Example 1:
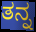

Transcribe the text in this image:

ತನ್ನ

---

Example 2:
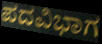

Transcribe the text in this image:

ಪದವಿಭಾಗ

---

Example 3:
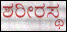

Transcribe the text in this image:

ಶರೀರಸ್ಥ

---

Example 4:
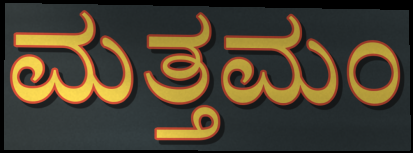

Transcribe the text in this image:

ಮತ್ತಮಂ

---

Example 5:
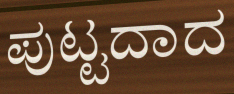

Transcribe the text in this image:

ಪುಟ್ಟದಾದ